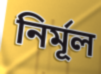
নির্মূল